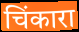
चिंकारा